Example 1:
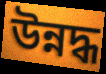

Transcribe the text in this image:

উন্নদ্ধ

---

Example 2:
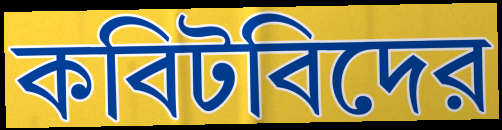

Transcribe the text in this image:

কবিটবিদের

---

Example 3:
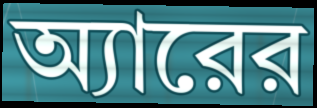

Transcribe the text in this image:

অ্যারের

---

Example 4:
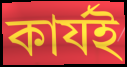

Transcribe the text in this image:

কার্যই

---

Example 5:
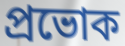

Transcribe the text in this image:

প্রভোক